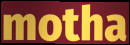
motha